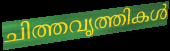
ചിത്തവൃത്തികൾ